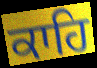
ਕਾਹਿ